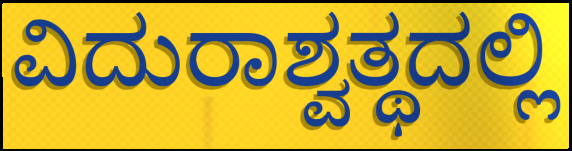
ವಿದುರಾಶ್ವತ್ಥದಲ್ಲಿ